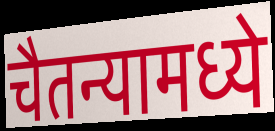
चैतन्यामध्ये